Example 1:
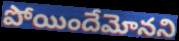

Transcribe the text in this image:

పోయిందేమోనని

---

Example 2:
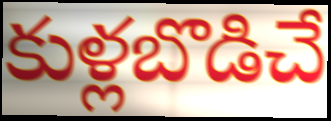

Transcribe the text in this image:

కుళ్లబొడిచే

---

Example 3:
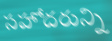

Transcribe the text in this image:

సహోదరున్ని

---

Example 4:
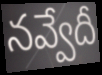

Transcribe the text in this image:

నవ్వేదీ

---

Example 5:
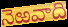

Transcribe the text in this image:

నెఱవాది